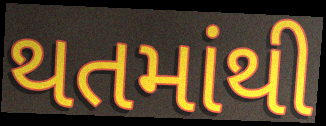
થતમાંથી